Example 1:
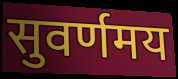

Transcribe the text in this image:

सुवर्णमय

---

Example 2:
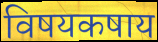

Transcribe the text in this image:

विषयकषाय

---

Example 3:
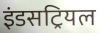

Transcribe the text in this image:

इंडसट्रियल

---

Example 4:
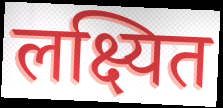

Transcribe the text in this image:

लक्ष्यित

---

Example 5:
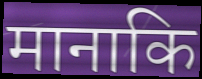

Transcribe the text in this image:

मानाकि